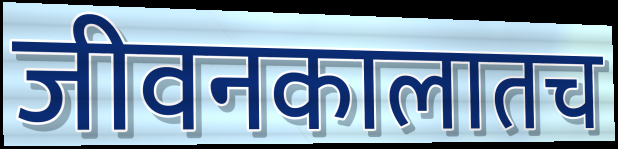
जीवनकालातच